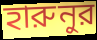
হারুনুর